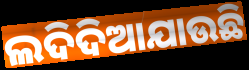
ଲଦିଦିଆଯାଉଛି